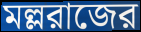
মল্লরাজের